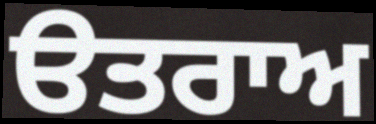
ੳਤਰਾਅ